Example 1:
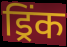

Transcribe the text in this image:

ड्रिंक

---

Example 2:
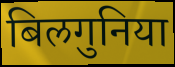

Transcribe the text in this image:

बिलगुनिया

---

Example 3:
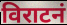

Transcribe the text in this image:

विराटनं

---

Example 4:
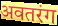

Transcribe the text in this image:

अवतरंग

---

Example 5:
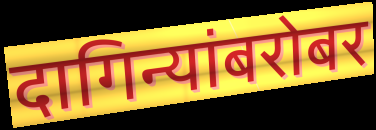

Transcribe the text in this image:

दागिन्यांबरोबर